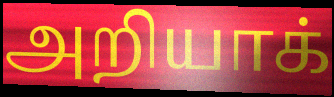
அறியாக்